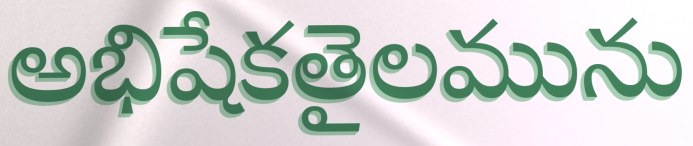
అభిషేకతైలమును